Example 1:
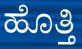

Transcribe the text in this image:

ಹೊತ್ತಿ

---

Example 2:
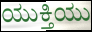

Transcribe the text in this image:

ಯುಕ್ತಿಯು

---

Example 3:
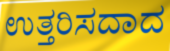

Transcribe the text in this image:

ಉತ್ತರಿಸದಾದ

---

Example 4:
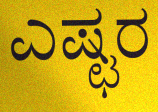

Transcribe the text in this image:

ಎಷ್ಟರ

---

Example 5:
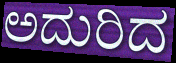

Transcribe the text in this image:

ಅದುರಿದ